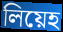
লিয়েহ